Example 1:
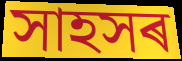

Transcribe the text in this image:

সাহসৰ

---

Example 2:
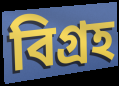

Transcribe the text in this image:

বিগ্ৰহ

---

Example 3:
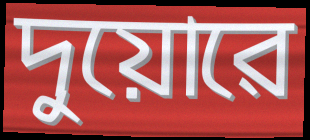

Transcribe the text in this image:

দুয়োৱে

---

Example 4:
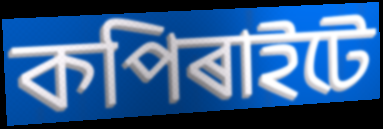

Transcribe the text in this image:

কপিৰাইটে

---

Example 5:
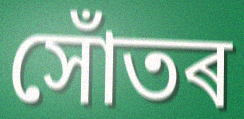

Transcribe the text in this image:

সোঁতৰ